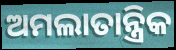
ଅମଲାତାନ୍ତ୍ରିକ